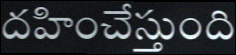
దహించేస్తుంది